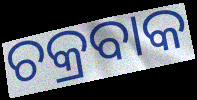
ଚକ୍ରବାକ